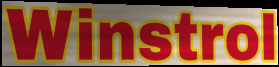
Winstrol